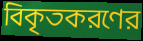
বিকৃতকরণের